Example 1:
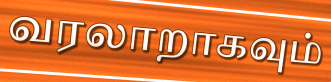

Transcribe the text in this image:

வரலாறாகவும்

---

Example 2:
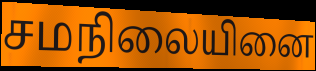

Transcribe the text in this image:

சமநிலையினை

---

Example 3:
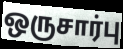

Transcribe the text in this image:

ஒருசார்பு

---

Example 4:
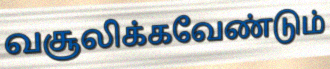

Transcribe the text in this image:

வசூலிக்கவேண்டும்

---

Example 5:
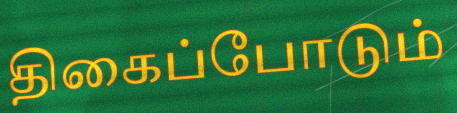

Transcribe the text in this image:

திகைப்போடும்